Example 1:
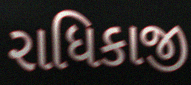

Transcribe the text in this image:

રાધિકાજી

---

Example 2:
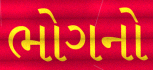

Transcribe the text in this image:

ભોગનો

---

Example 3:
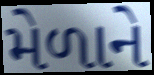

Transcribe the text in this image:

મેળાને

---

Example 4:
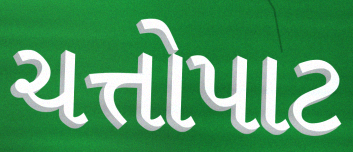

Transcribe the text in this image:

ચત્તોપાટ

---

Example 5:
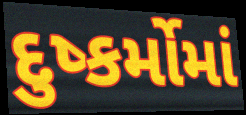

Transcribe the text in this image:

દુષ્કર્મોમાં